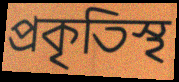
প্রকৃতিস্থ